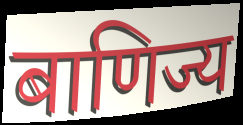
बाणिज्य